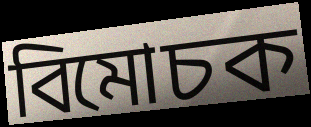
বিমোচক